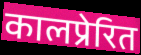
कालप्रेरित